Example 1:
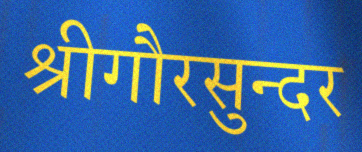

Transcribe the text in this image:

श्रीगौरसुन्दर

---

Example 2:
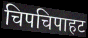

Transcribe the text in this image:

चिपचिपाहट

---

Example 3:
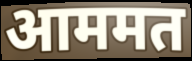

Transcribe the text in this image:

आममत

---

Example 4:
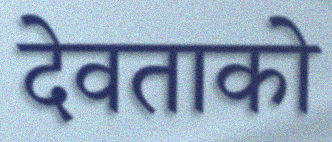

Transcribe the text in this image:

देवताको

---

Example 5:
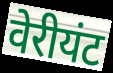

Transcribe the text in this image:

वेरीयंट